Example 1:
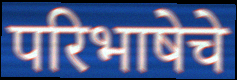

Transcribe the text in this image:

परिभाषेचे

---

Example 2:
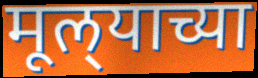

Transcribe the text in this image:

मूल्याच्या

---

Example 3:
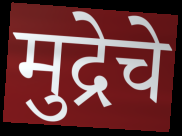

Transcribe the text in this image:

मुद्रेचे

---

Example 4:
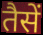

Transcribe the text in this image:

तैसें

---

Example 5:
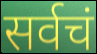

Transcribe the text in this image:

सर्वचं